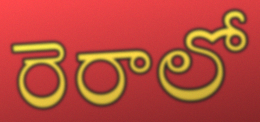
రెరాలో